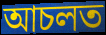
আচলত